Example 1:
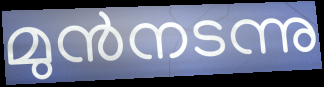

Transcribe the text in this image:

മുൻനടന്നു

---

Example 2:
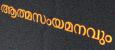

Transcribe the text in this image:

ആത്മസംയമനവും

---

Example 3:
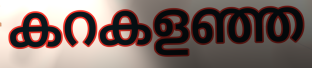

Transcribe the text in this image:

കറകളഞ്ഞ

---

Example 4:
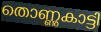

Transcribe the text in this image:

തൊണ്ണുകാട്ടി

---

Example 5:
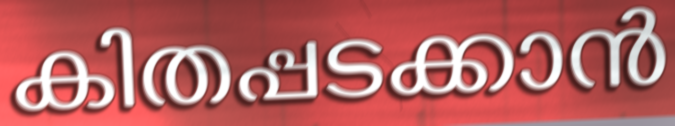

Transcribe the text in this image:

കിതപ്പടക്കാൻ